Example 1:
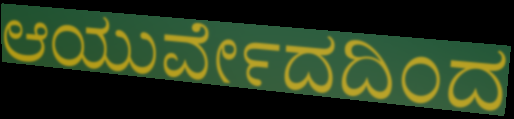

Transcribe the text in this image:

ಆಯುರ್ವೇದದಿಂದ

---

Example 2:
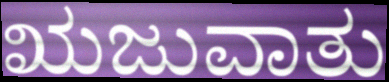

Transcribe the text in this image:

ಋಜುವಾತು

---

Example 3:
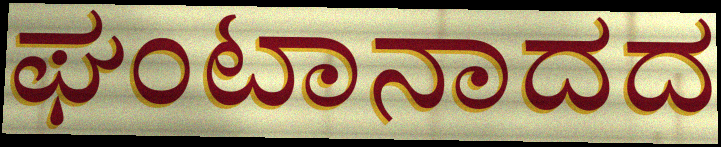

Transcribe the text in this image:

ಘಂಟಾನಾದದ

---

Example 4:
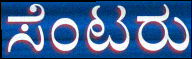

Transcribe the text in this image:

ಸೆಂಟರು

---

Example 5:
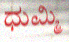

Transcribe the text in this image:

ಧುಮ್ಮಿ